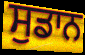
ਸੁਡਾਨ